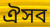
ঐসব